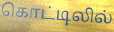
கொட்டிலில்